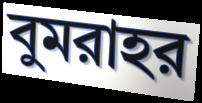
বুমরাহর